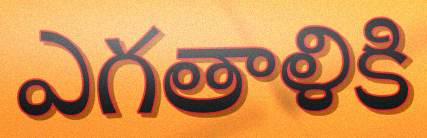
ఎగతాళికి